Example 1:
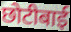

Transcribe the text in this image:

छोटीबाई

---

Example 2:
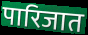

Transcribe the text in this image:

पारिजात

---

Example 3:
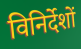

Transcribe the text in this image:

विनिर्देशों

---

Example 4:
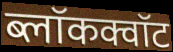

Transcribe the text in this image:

ब्लॉकक्वॉट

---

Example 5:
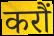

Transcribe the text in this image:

करौं